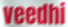
veedhi